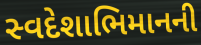
સ્વદેશાભિમાનની